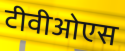
टीवीओएस